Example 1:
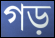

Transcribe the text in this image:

গড়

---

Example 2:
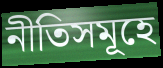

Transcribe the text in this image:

নীতিসমূহে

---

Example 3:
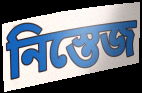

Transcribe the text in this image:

নিস্তেজ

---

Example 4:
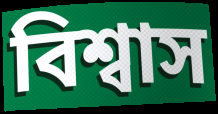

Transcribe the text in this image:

বিশ্বাস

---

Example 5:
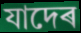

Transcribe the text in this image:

যাদেৰ